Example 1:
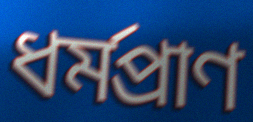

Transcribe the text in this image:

ধৰ্মপ্ৰাণ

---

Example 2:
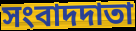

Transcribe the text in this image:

সংবাদদাতা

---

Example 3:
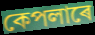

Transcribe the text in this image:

কেপলাৰে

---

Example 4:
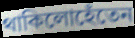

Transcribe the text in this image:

থাকিলোহেঁতেন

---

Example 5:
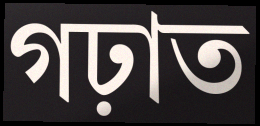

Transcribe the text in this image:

গঢ়াত